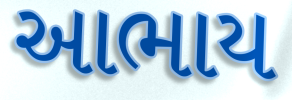
આભાય